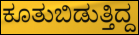
ಕೂತುಬಿಡುತ್ತಿದ್ದ